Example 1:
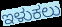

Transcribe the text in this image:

ಇಳುಕಲು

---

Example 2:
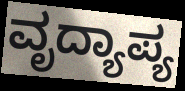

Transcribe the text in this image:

ವೃದ್ಯಾಪ್ಯ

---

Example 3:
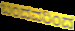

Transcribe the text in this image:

ಬಂದವರಿಂದ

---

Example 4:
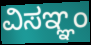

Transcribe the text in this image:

ವಿಸಞ್ಞಂ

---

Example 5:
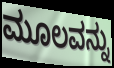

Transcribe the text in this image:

ಮೂಲವನ್ನು